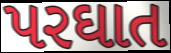
પરઘાત